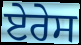
ਏਰੇਸ